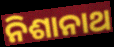
ନିଶାନାଥ